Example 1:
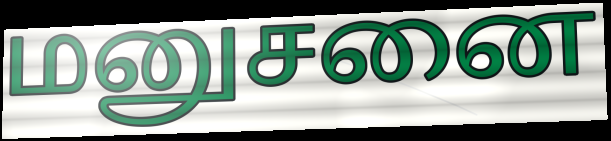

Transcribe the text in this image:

மனுசனை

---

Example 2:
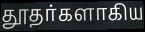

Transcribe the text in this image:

தூதர்களாகிய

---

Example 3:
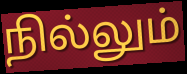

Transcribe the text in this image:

நில்லும்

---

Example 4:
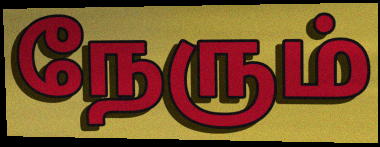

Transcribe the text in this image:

நேரும்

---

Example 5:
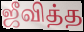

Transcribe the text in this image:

ஜீவித்த